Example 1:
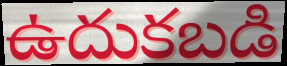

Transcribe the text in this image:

ఉదుకబడి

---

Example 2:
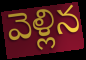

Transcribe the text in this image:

వెళ్లిన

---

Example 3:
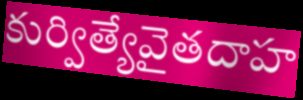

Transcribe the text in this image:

కుర్విత్యేవైతదాహ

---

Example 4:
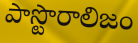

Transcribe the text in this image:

పాస్టొరాలిజం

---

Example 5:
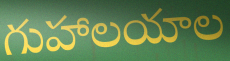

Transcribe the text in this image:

గుహాలయాల